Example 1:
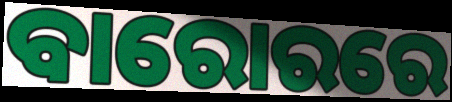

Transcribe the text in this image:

ବାରୋରରେ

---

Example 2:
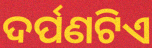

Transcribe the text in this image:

ଦର୍ପଣଟିଏ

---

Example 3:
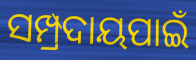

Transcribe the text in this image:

ସମ୍ପ୍ରଦାୟପାଇଁ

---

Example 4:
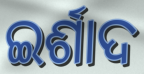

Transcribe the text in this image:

ଇର୍ଶାଦ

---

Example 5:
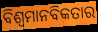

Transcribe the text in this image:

ବିଶ୍ଵମାନବିକତାର